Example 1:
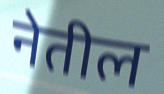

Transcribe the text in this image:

नेतील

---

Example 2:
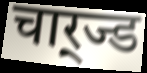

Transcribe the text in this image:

चार्ज्ड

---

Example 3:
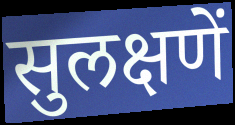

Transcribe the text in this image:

सुलक्षणें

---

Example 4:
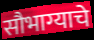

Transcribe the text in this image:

सौभाग्याचे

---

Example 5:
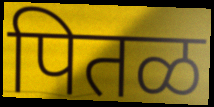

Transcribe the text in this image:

पितळ